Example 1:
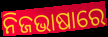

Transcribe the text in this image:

ନିଜଭାଷାରେ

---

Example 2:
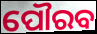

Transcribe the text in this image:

ପୌରବ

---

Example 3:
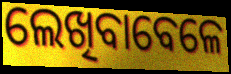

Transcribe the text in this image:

ଲେଖିବାବେଳେ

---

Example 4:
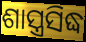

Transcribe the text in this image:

ଶାସ୍ତ୍ରସିଦ୍ଧ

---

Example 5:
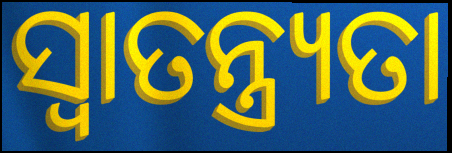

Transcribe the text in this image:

ସ୍ୱାତନ୍ତ୍ର୍ୟତା